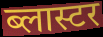
ब्लास्टर